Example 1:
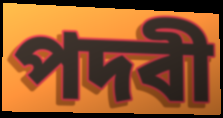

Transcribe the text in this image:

পদবী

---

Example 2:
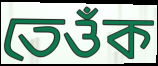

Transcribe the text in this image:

তেওঁক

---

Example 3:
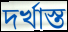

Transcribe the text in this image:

দৰ্খাস্ত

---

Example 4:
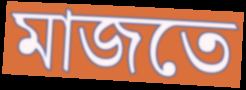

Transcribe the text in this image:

মাজতে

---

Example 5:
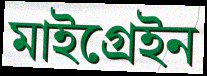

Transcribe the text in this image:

মাইগ্ৰেইন